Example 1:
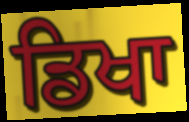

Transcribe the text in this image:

ਡਿਖਾ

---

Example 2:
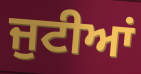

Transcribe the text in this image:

ਜੁਟੀਆਂ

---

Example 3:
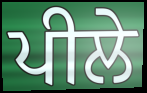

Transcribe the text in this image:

ਪੀਲੇ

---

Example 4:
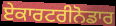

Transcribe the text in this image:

ਏਕਾਰਟਰੀਨੋਡਾਰ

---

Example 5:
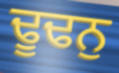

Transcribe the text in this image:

ਢੂਢਨੁ